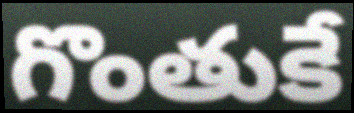
గొంతుకే